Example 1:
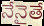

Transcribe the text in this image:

నేనైతే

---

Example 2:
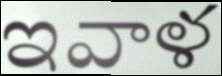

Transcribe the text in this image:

ఇవాళ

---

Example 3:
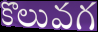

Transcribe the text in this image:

కొలువగ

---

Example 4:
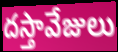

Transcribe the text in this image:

దస్తావేజులు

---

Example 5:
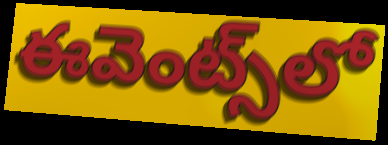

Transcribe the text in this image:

ఈవెంట్స్‌లో